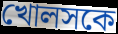
খোলসকে